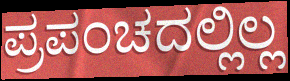
ಪ್ರಪಂಚದಲ್ಲಿಲ್ಲ